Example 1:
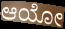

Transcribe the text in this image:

ಆಯೋ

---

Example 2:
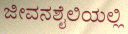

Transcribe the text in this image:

ಜೀವನಶೈಲಿಯಲ್ಲಿ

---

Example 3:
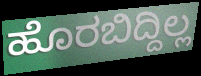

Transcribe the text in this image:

ಹೊರಬಿದ್ದಿಲ್ಲ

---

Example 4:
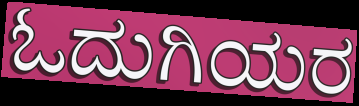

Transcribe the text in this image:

ಓದುಗಿಯರ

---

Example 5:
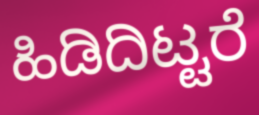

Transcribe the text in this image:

ಹಿಡಿದಿಟ್ಟರೆ